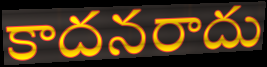
కాదనరాదు